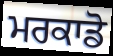
ਮਰਕਾਡੋ